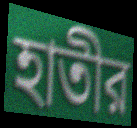
হাতীর